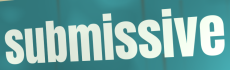
submissive